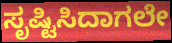
ಸೃಷ್ಟಿಸಿದಾಗಲೇ